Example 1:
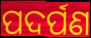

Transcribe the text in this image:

ପଦର୍ପଣ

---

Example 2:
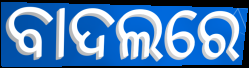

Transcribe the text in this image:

ବାଦଲରେ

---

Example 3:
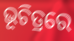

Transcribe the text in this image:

ଭୂଚିତ୍ରରେ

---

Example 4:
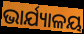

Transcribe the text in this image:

ଭାର୍ଯ୍ୟାଳୟ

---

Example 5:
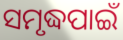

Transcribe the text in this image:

ସମୃଦ୍ଧପାଇଁ